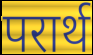
परार्थ